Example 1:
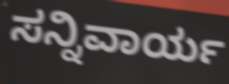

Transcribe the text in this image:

ಸನ್ನಿವಾರ್ಯ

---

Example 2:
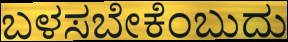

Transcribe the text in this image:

ಬಳಸಬೇಕೆಂಬುದು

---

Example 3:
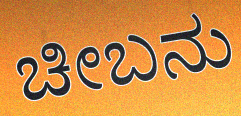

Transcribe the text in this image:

ಚೀಬನು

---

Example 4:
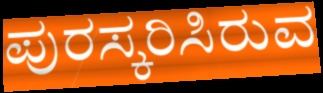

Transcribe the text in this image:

ಪುರಸ್ಕರಿಸಿರುವ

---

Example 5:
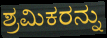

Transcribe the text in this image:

ಶ್ರಮಿಕರನ್ನು